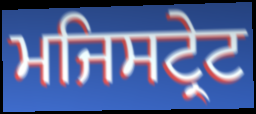
ਮਜਿਸਟ੍ਰੇਟ